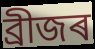
ব্ৰীজৰ